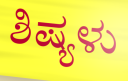
ಶಿಷ್ಯಳು